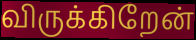
விருக்கிறேன்